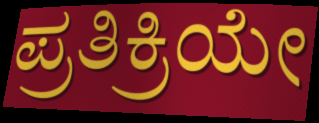
ಪ್ರತಿಕ್ರಿಯೇ